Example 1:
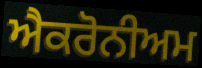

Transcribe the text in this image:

ਐਕਰੋਨੀਅਮ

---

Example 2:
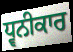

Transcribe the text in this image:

ਧ੍ਵਨੀਕਾਰ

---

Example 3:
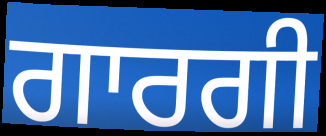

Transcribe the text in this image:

ਗਾਰਗੀ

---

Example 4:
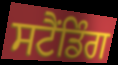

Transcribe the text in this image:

ਸਟੈਂਡਿੰਗ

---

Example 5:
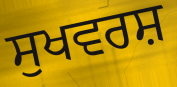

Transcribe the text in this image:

ਸੁਖਵਰਸ਼